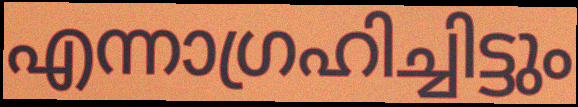
എന്നാഗ്രഹിച്ചിട്ടും